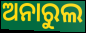
ଅନାରୁଲ